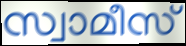
സ്വാമീസ്